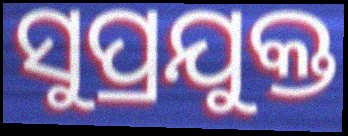
ସୁପ୍ରଯୁକ୍ତ